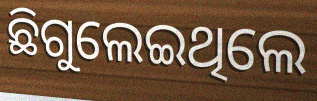
ଛିଗୁଲେଇଥିଲେ